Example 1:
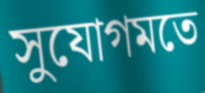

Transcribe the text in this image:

সুযোগমতে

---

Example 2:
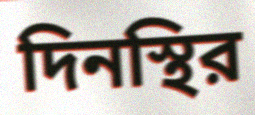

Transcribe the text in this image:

দিনস্থির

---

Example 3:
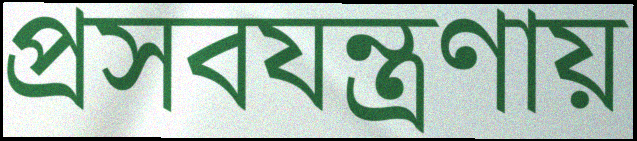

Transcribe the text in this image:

প্রসবযন্ত্রণায়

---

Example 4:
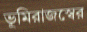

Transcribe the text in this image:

ভূমিরাজস্বের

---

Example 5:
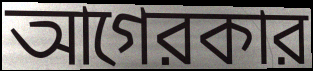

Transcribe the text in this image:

আগেরকার